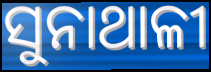
ସୁନାଥାଳୀ